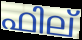
ഫില്